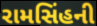
રામસિંહની